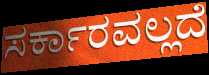
ಸರ್ಕಾರವಲ್ಲದೆ